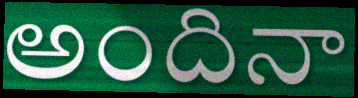
అందినా